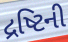
દ્રષ્ટિની